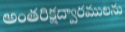
అంతరిక్షద్వారములను